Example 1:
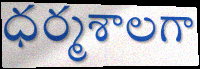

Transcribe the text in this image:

ధర్మశాలగా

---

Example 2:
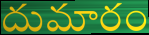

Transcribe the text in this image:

దుమారం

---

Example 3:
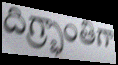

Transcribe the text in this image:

దిగ్ర్భాంతిగా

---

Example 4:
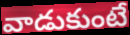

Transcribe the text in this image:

వాడుకుంటే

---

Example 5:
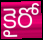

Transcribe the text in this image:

కైరో